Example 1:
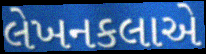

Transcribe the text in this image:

લેખનકલાએ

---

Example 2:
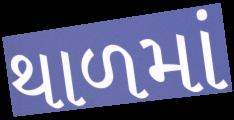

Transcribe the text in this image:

થાળમાં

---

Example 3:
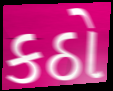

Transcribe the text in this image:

કઠો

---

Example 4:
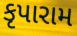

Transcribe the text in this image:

કૃપારામ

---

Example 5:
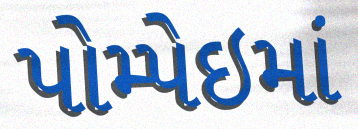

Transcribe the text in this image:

પોમ્પેઇમાં